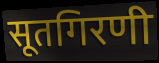
सूतगिरणी